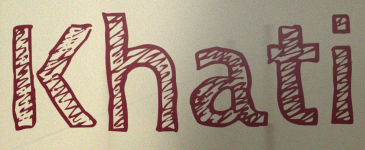
Khati